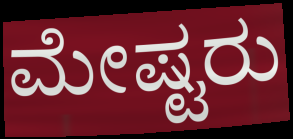
ಮೇಷ್ಟರು